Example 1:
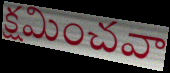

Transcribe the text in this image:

క్షమించవా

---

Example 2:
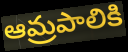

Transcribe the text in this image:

ఆమ్రపాలికి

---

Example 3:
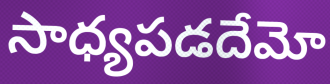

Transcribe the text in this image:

సాధ్యపడదేమో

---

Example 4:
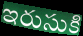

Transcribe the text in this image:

ఇరుసుకి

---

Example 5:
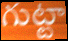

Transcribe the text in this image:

గుట్టా